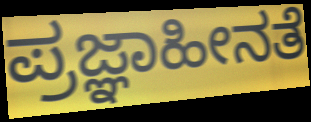
ಪ್ರಜ್ಞಾಹೀನತೆ